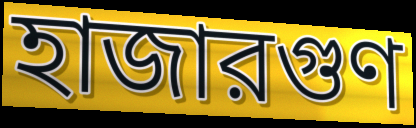
হাজারগুণ